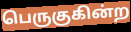
பெருகுகின்ற